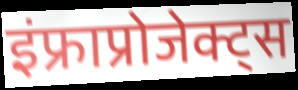
इंफ्राप्रोजेक्ट्स